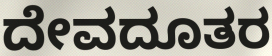
ದೇವದೂತರ